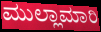
ಮುಲ್ಲಾಮಾರಿ